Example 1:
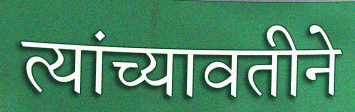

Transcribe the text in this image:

त्यांच्यावतीने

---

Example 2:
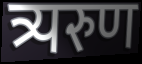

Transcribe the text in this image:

त्र्यरुण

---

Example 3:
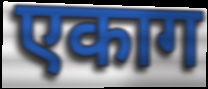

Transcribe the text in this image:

एकाग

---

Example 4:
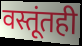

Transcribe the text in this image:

वस्तूंतही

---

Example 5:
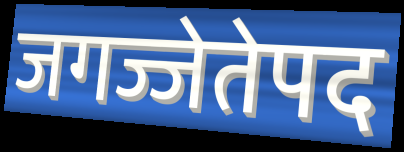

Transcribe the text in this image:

जगज्जेतेपद